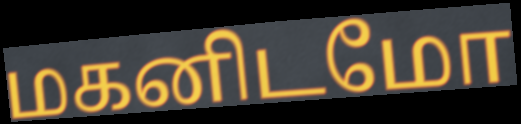
மகனிடமோ